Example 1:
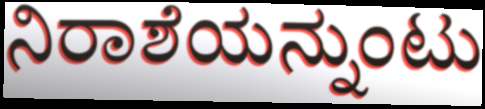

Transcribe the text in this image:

ನಿರಾಶೆಯನ್ನುಂಟು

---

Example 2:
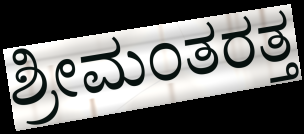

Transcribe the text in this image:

ಶ್ರೀಮಂತರತ್ತ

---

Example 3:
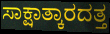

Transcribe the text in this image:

ಸಾಕ್ಷಾತ್ಕಾರದತ್ತ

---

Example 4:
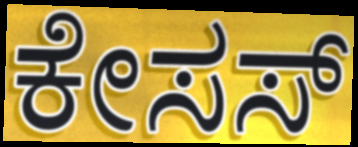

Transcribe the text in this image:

ಕೇಸಸ್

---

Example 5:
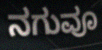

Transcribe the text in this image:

ನಗುವೂ